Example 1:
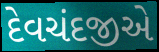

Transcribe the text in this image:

દેવચંદજીએ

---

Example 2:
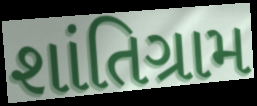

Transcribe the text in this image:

શાંતિગ્રામ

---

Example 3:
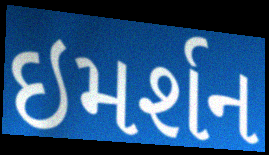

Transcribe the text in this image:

ઇમર્શન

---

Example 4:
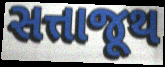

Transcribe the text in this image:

સત્તાજૂથ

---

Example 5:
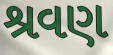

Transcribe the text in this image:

શ્રવણ